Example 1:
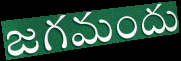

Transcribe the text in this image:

జగమందు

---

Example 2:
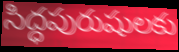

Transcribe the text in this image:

సిద్ధపురుషులకు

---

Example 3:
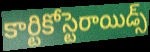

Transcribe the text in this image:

కార్టికోస్టెరాయిడ్స్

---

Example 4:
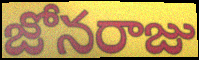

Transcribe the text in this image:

జోనరాజు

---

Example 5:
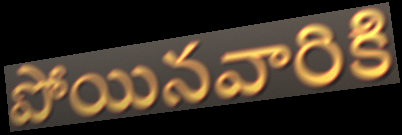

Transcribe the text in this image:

పోయినవారికి